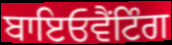
ਬਾਇਓਵੈਂਟਿੰਗ